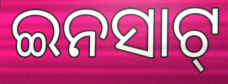
ଇନସାଟ୍